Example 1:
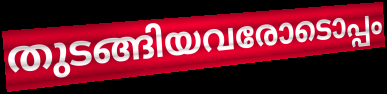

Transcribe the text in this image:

തുടങ്ങിയവരോടൊപ്പം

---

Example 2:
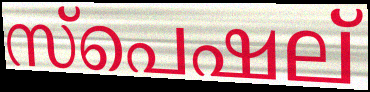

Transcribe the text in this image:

സ്പെഷല്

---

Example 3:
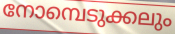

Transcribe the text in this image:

നോമ്പെടുക്കലും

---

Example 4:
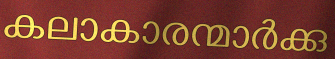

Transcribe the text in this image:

കലാകാരന്മാർക്കു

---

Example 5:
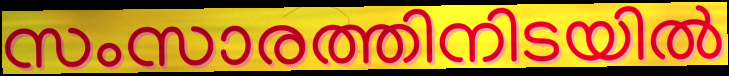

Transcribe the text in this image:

സംസാരത്തിനിടയിൽ